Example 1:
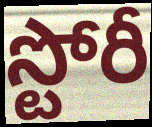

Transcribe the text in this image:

స్టోరీ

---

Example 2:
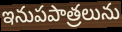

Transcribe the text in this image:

ఇనుపపాత్రలును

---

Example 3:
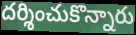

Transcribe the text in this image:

దర్శించుకొన్నారు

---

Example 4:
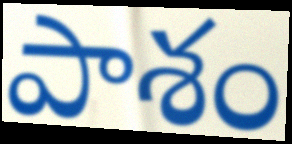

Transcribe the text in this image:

పాశం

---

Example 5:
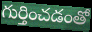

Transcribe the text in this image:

గుర్తించడంతో